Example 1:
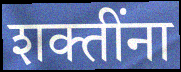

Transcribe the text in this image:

शक्तींना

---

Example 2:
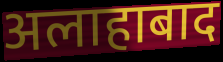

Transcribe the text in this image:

अलाहाबाद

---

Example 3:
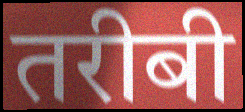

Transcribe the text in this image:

तरीबी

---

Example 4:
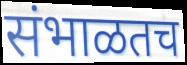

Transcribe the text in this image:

संभाळतच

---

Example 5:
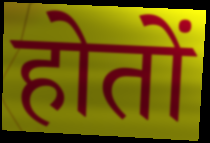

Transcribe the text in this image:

होतों